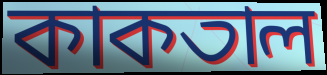
কাকতাল